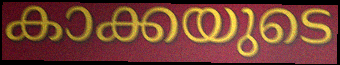
കാക്കയുടെ